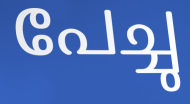
പേച്ചു